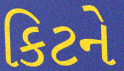
કિટને